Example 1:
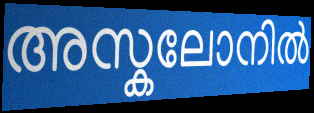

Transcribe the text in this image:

അസ്കലോനിൽ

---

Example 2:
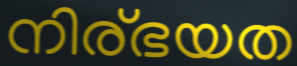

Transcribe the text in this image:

നിര്ഭയത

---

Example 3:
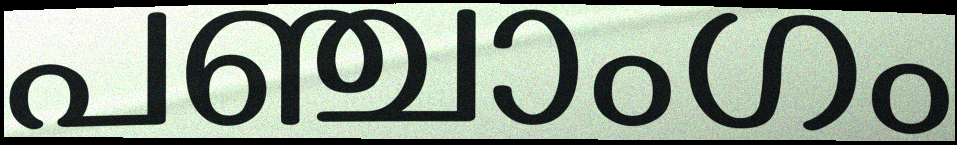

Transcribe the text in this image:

പഞ്ചാംഗം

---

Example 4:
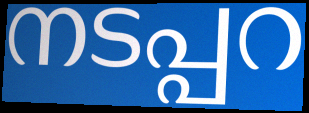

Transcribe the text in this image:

നടപ്പറ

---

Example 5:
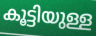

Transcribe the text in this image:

കൂട്ടിയുള്ള